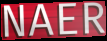
NAER